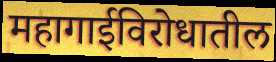
महागाईविरोधातील